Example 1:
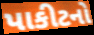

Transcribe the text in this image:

પાકીટનો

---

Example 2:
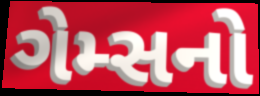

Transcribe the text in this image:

ગેમ્સનો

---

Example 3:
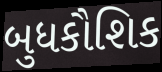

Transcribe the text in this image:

બુધકૌશિક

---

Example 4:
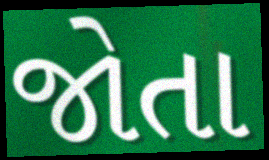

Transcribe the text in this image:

જોતા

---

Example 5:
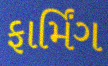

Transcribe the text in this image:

ફાર્મિંગ